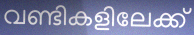
വണ്ടികളിലേക്ക്